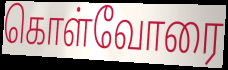
கொள்வோரை